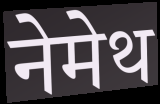
नेमेथ